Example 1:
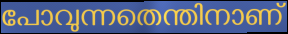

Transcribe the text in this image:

പോവുന്നതെന്തിനാണ്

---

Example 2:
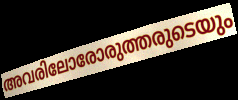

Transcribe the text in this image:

അവരിലോരോരുത്തരുടെയും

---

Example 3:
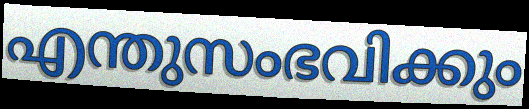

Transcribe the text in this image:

എന്തുസംഭവിക്കും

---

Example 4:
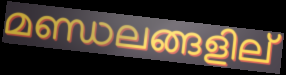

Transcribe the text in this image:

മണ്ഡലങ്ങളില്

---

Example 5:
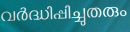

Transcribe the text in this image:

വർദ്ധിപ്പിച്ചുതരും